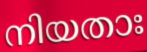
നിയതാഃ